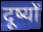
दूष्यों